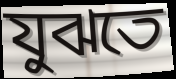
যুঝতে